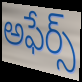
అఫేర్స్